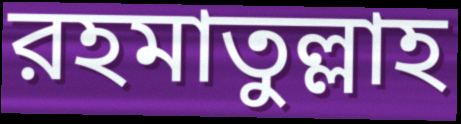
রহমাতুল্লাহ